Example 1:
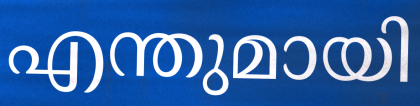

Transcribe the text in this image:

എന്തുമായി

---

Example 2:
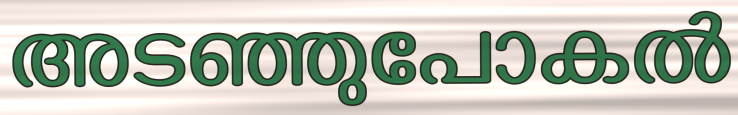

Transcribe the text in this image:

അടഞ്ഞുപോകൽ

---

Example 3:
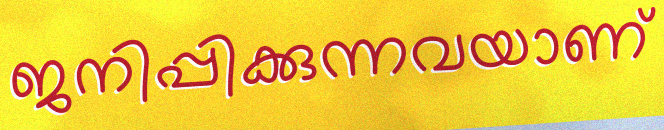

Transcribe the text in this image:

ജനിപ്പിക്കുന്നവയാണ്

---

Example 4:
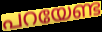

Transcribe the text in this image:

പറയേണ്ട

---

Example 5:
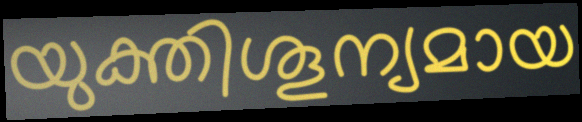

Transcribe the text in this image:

യുക്തിശൂന്യമായ